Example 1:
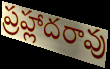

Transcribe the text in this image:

ప్రహ్లాదరావు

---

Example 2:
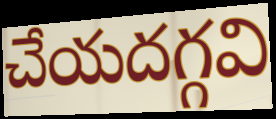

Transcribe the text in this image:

చేయదగ్గవి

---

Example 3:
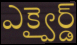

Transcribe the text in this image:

ఎక్వైర్డ్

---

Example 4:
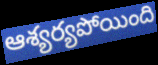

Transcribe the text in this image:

ఆశ్యర్యపోయింది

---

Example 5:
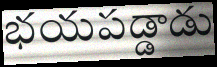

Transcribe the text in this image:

భయపడ్డాడు